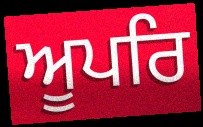
ਅੂਪਰਿ